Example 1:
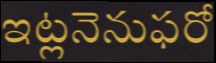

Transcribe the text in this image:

ఇట్లనెనుఫరో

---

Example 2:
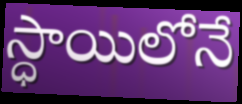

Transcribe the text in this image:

స్ధాయిలోనే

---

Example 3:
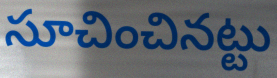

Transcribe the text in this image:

సూచించినట్టు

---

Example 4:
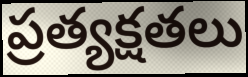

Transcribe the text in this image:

ప్రత్యక్షతలు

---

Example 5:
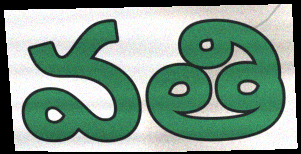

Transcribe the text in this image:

వతి